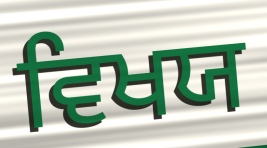
ਵਿਖਯ